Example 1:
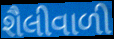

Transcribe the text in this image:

શૈલીવાળી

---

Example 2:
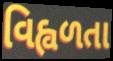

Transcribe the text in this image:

વિહ્વળતા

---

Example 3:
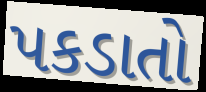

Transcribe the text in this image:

પકડાતો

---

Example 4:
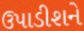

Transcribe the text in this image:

ઉપાડીશને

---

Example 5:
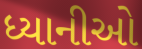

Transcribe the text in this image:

ધ્યાનીઓ